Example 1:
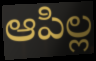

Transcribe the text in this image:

ఆపిల్ల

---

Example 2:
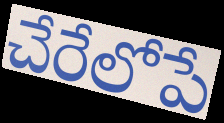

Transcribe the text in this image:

చేరేలోపే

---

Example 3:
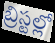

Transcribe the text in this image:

బ్రిస్టల్లో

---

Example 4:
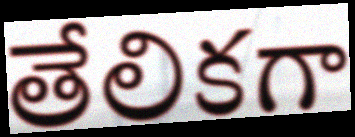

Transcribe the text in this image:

తేలికగా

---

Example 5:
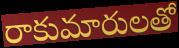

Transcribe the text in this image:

రాకుమారులతో